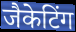
जैकेटिंग